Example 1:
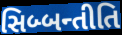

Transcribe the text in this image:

સિબ્બન્તીતિ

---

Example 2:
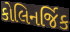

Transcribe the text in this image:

કોલિનર્જિક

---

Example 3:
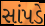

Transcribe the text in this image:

સાંપડે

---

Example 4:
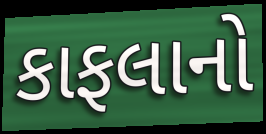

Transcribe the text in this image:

કાફલાનો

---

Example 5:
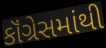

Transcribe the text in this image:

કૉંગ્રેસમાંથી